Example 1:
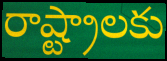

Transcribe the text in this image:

రాష్ట్రాలకు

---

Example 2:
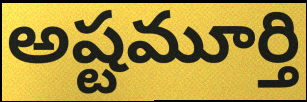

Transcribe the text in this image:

అష్టమూర్తి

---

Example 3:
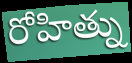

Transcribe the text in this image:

రోహిత్ను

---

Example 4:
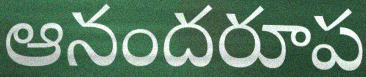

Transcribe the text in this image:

ఆనందరూప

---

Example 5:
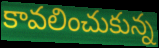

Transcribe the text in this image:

కావలించుకున్న